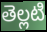
తెల్లటి